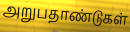
அறுபதாண்டுகள்